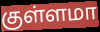
குள்ளமா